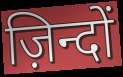
ज़िन्दों